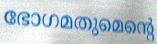
ഭോഗമതുമെന്റെ